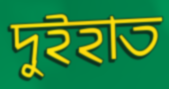
দুইহাত